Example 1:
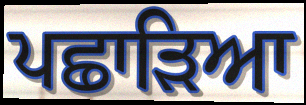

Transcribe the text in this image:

ਪਛਾੜਿਆ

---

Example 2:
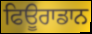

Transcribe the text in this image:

ਫਿਊਰਾਡਾਨ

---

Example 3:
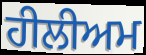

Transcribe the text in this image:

ਹੀਲੀਅਮ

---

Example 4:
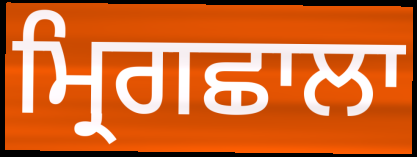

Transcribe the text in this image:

ਮ੍ਰਿਗਛਾਲਾ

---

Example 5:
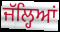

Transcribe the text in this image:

ਜੱਲ੍ਹਿਆਂ